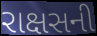
રાક્ષસની